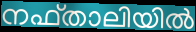
നഫ്താലിയിൽ